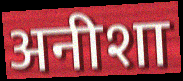
अनीशा